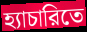
হ্যাচারিতে